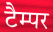
टैम्पर